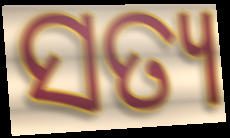
ସତ୍ୟ